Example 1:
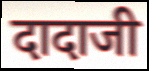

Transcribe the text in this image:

दादाजी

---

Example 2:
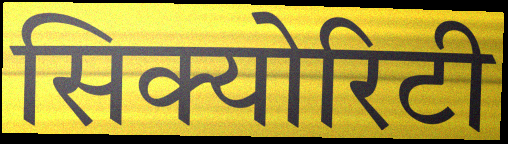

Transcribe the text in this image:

सिक्योरिटी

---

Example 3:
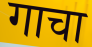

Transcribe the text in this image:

गाचा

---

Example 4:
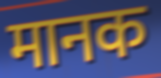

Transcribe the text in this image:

मानक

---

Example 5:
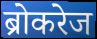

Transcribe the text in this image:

ब्रोकरेज